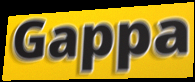
Gappa